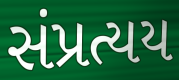
સંપ્રત્યય